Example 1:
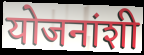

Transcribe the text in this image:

योजनांशी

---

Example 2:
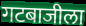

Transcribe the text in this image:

गटबाजीला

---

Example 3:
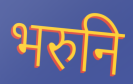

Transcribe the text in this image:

भरुनि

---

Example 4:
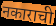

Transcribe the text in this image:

नकाराची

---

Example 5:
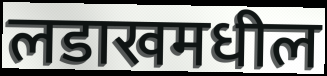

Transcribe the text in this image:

लडाखमधील